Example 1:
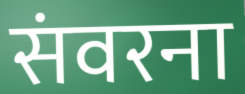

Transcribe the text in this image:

संवरना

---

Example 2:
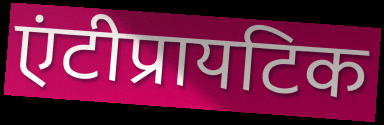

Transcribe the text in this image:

एंटीप्रायटिक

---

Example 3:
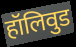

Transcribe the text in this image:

हॉलिवुड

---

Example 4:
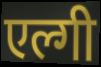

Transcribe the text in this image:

एल्गी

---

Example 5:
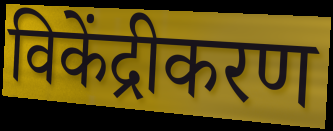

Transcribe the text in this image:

विकेंद्रीकरण